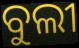
ବୁଲୀ